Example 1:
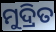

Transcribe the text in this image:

ମୁଦ୍ରିତ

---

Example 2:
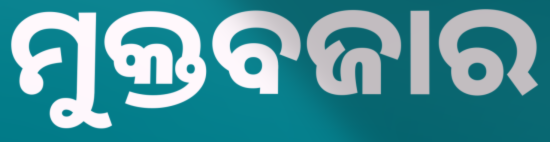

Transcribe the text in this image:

ମୁକ୍ତବଜାର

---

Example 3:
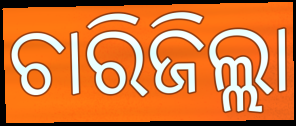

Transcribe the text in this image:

ଚାରିଜିଲ୍ଲା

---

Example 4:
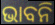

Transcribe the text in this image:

ଭାବନି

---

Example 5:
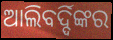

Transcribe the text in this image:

ଆଲିବର୍ଦ୍ଦିଙ୍କର